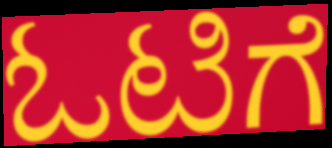
ಓಟಿಗೆ